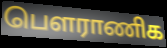
பௌராணிக